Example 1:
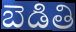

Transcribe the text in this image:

బెడితి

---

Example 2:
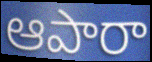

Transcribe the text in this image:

ఆపారా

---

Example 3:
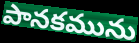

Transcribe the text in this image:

పానకమును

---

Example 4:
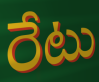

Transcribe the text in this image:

రేటు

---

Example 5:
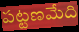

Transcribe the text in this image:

పట్టణమేది